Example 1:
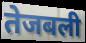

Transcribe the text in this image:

तेजबली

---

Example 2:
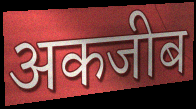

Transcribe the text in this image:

अकजीब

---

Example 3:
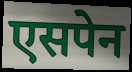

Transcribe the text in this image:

एसपेन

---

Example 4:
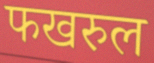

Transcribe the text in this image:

फखरुल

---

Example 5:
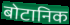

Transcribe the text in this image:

बोटानिक